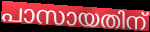
പാസായതിന്